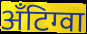
अँटिग्वा